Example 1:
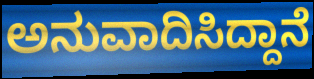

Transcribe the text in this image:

ಅನುವಾದಿಸಿದ್ದಾನೆ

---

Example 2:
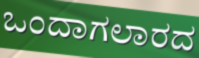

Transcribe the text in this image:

ಒಂದಾಗಲಾರದ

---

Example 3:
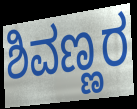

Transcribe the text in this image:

ಶಿವಣ್ಣರ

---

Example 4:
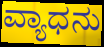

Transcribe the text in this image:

ವ್ಯಾಧನು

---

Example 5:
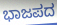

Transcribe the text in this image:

ಭಾಜಪದ